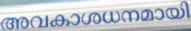
അവകാശധനമായി